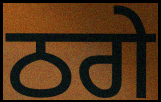
ਠਗੇ